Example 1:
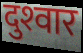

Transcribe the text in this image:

दुश्‍वार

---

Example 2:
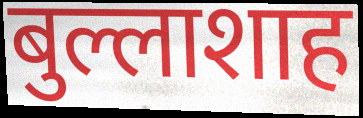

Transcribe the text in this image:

बुल्लाशाह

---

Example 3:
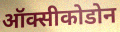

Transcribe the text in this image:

ऑक्सीकोडोन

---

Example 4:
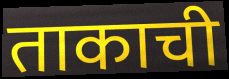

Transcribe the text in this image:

ताकाची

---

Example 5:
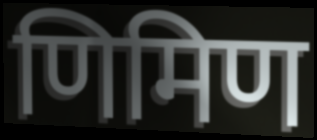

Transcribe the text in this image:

णिमिण